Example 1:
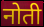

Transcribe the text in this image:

नोती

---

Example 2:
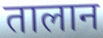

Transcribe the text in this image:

तालान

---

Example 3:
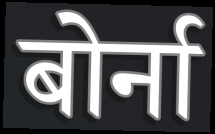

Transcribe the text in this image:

बोर्ना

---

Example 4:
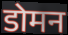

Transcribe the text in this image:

डोमन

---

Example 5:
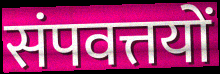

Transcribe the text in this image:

संपवत्तयों